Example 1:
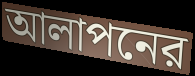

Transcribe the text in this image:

আলাপনের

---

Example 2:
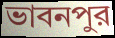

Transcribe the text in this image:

ভাবনপুর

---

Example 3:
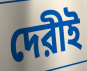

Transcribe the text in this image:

দেরীই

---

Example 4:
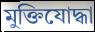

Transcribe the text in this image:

মুক্তিযোদ্ধা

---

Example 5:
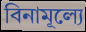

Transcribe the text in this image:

বিনামূল্যে